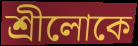
শ্রীলোকে